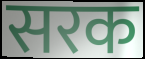
सरक